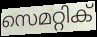
സെമറ്റിക്